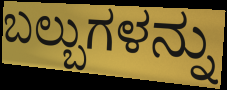
ಬಲ್ಬುಗಳನ್ನು